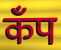
कॅंप